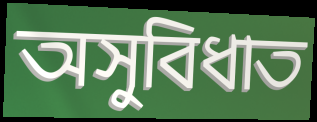
অসুবিধাত